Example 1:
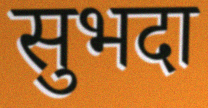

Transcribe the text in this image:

सुभदा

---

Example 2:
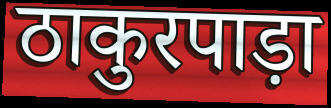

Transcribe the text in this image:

ठाकुरपाड़ा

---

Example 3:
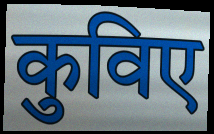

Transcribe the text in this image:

कुविए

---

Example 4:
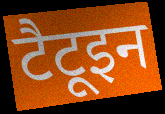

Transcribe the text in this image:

टैटूइन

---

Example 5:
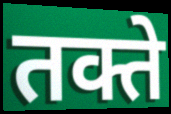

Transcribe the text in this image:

तक्ते